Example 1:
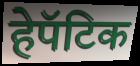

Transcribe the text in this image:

हेपॅटिक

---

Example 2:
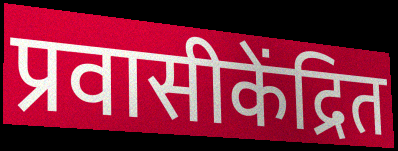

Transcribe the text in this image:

प्रवासीकेंद्रित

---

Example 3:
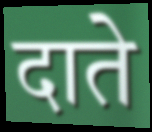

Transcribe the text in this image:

दाते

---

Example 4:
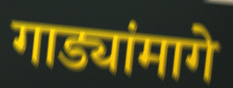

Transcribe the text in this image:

गाड्यांमागे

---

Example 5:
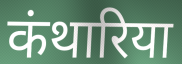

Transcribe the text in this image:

कंथारिया